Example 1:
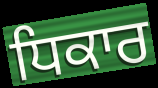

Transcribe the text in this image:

ਧਿਕਾਰ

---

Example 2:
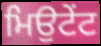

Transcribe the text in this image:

ਮਿਉਟੇਂਟ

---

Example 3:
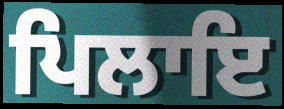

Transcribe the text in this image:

ਪਿਲਾਇ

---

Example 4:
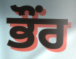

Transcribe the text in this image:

ਭੌਂਰ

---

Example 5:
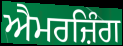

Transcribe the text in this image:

ਐਮਰਜ਼ਿੰਗ